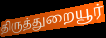
திருத்துறையூர்